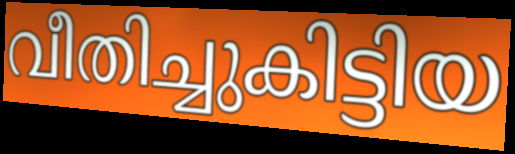
വീതിച്ചുകിട്ടിയ